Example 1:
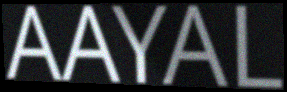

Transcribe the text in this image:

AAYAL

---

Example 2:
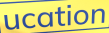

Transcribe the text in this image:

ucation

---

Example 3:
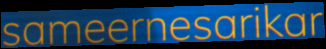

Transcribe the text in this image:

sameernesarikar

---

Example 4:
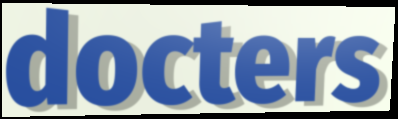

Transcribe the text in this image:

docters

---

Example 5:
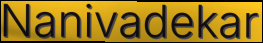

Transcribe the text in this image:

Nanivadekar